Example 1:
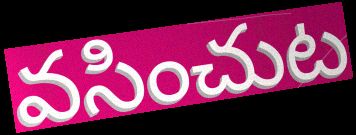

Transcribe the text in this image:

వసించుట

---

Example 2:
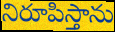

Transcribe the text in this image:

నిరూపిస్తాను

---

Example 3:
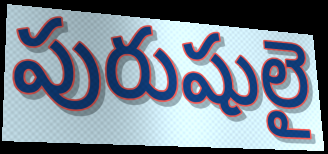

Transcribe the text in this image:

పురుషులై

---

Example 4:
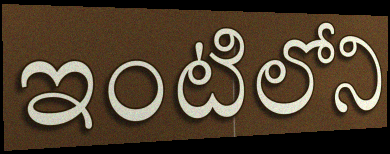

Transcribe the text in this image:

ఇంటిలోని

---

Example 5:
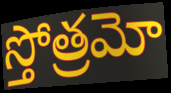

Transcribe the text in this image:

స్తోత్రమో